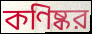
কণিষ্কর